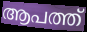
ആപത്ത്